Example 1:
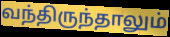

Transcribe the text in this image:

வந்திருந்தாலும்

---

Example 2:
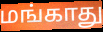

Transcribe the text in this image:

மங்காது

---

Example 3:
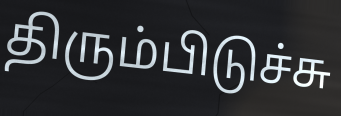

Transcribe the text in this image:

திரும்பிடுச்சு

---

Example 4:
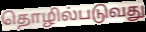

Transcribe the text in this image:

தொழில்படுவது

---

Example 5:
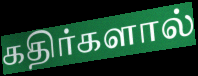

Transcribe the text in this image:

கதிர்களால்